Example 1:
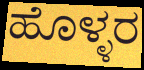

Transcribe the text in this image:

ಹೊಳ್ಳರ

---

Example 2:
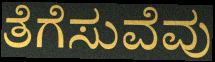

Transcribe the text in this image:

ತೆಗೆಸುವೆವು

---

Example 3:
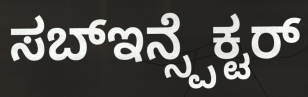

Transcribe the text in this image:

ಸಬ್ಇನ್ಸ್ಪೆಕ್ಟರ್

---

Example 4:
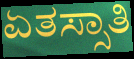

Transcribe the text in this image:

ಏತಸ್ಸಾತಿ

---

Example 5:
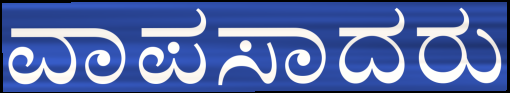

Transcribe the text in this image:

ವಾಪಸಾದರು